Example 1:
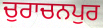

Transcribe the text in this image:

ਚੁਰਾਚਨਪੁਰ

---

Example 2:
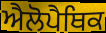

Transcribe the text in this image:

ਐਲੋਪੈਥਿਕ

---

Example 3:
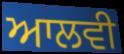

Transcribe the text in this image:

ਆਲਵੀ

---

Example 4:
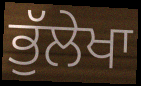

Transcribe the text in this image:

ਭੁੱਲੇਖਾ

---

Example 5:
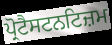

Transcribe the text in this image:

ਪ੍ਰੋਟੈਸਟਨਟਿਜ਼ਮ